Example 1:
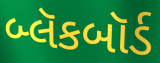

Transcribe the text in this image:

બ્લૅકબૉર્ડ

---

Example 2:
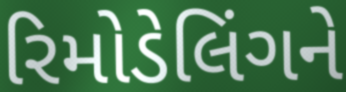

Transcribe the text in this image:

રિમોડેલિંગને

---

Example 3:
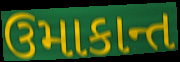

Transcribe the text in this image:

ઉમાકાન્ત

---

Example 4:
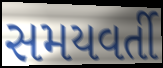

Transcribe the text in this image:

સમયવર્તી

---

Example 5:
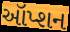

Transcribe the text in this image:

ઑપ્શન